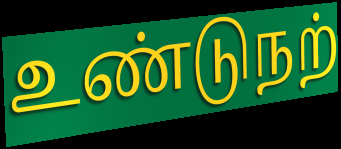
உண்டுநற்